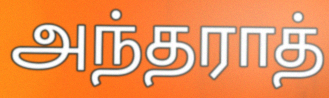
அந்தராத்